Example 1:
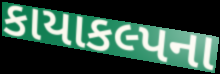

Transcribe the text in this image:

કાયાકલ્પના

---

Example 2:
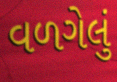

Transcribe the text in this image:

વળગેલું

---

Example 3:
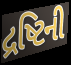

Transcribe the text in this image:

દ્રષ્ટિની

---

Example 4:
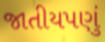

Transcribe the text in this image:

જાતીયપણું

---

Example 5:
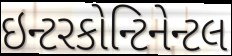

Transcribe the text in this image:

ઇન્ટરકોન્ટિનેન્ટલ